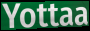
Yottaa